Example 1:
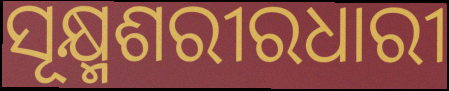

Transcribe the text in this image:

ସୂକ୍ଷ୍ମଶରୀରଧାରୀ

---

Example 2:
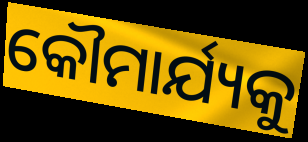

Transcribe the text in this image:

କୌମାର୍ଯ୍ୟକୁ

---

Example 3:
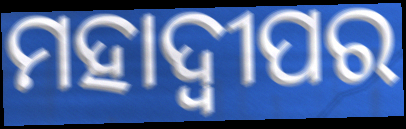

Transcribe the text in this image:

ମହାଦ୍ୱୀପର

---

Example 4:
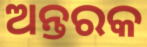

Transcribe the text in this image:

ଅନ୍ତରକ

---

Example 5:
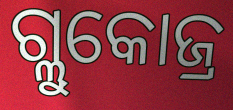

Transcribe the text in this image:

ଗ୍ଲୁକୋଜ୍ର